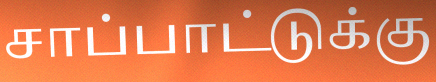
சாப்பாட்டுக்கு